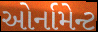
ઓર્નામેન્ટ